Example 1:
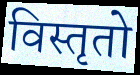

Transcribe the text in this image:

विस्तृतो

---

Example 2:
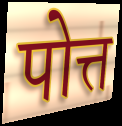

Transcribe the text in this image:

पोत्त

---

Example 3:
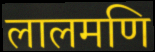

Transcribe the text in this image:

लालमणि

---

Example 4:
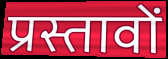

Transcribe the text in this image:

प्रस्‍तावों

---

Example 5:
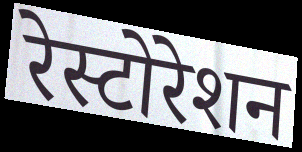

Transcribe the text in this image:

रेस्टोरेशन